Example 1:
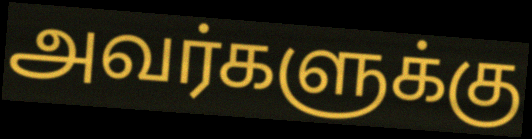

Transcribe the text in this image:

அவர்களுக்கு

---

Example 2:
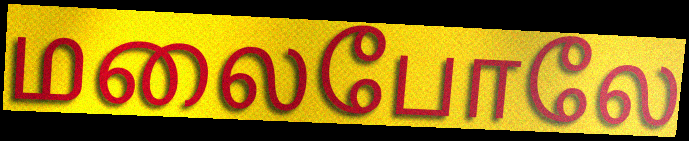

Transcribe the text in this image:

மலைபோலே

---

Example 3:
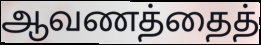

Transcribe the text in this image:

ஆவணத்தைத்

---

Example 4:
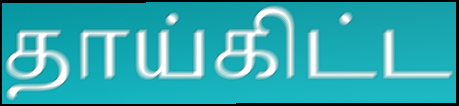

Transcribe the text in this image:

தாய்கிட்ட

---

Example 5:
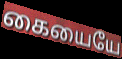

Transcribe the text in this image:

கையையே